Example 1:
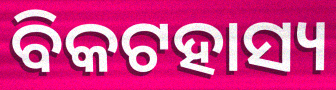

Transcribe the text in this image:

ବିକଟହାସ୍ୟ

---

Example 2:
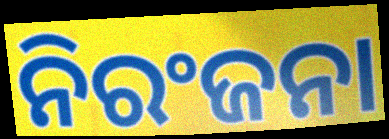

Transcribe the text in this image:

ନିରଂଜନା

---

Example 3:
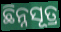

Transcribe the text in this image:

ଛିନ୍ନସୂତ୍ର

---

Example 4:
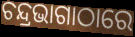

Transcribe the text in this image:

ଚନ୍ଦ୍ରଭାଗାଠାରେ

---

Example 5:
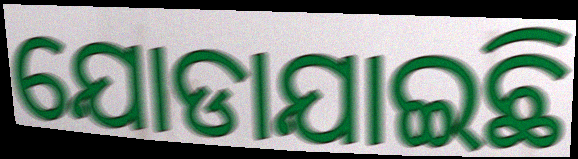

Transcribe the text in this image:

ଯୋଡାଯାଇଛି